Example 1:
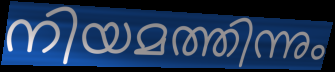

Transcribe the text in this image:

നിയമത്തിന്നും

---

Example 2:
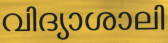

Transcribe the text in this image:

വിദ്യാശാലി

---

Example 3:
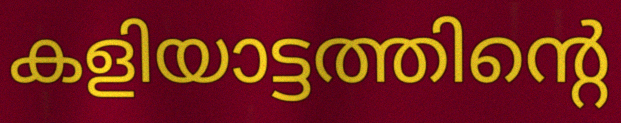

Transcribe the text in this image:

കളിയാട്ടത്തിന്റെ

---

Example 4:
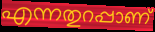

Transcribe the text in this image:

എന്നതുറപ്പാണ്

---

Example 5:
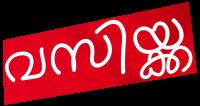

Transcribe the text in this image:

വസിയ്ക്ക